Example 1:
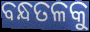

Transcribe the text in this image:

ବନ୍ଧତଳକୁ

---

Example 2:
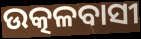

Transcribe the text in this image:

ଉତ୍କଳବାସୀ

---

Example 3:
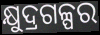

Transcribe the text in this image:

କ୍ଷୁଦ୍ରଗଳ୍ପର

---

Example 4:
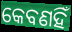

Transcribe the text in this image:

କେବଣହିଁ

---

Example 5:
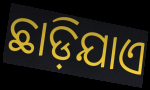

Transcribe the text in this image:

ଛାଡ଼ିଯାଏ